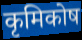
कृमिकोष